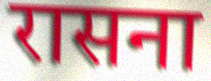
रासना